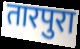
तारपुरा